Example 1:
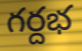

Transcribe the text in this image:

గర్దభ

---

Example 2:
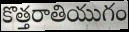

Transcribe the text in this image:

కొత్తరాతియుగం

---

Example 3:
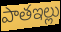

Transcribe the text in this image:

పాతఇల్లు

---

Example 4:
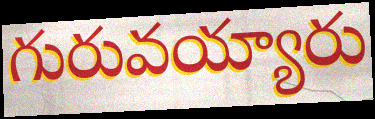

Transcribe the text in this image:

గురువయ్యారు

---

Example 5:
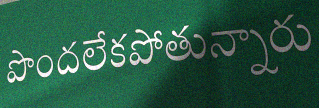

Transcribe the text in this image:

పొందలేకపోతున్నారు